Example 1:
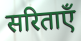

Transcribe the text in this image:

सरिताएँ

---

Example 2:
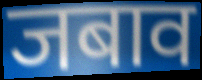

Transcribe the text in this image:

जबाव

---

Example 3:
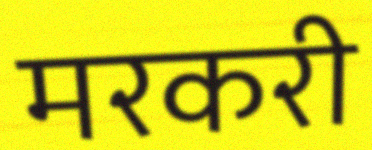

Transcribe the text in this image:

मरकरी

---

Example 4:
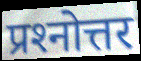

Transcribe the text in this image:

प्रश्‍नोत्तर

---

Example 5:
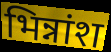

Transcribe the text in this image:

भिन्नांश